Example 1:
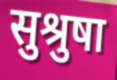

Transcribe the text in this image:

सुश्रुषा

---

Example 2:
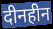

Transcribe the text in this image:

दीनहीन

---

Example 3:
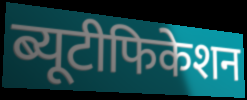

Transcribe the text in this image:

ब्यूटीफिकेशन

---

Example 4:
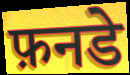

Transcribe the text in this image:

फ़नडे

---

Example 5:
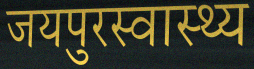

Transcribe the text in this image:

जयपुरस्वास्थ्य